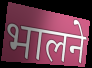
भालने